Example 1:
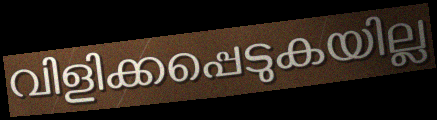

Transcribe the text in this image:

വിളിക്കപ്പെടുകയില്ല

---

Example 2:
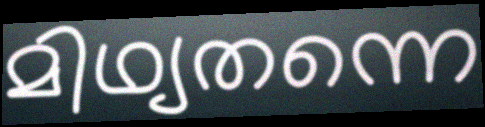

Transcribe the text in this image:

മിഥ്യതന്നെ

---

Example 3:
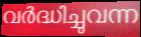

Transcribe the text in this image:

വർദ്ധിച്ചുവന്ന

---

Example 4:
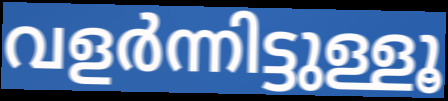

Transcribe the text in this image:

വളർന്നിട്ടുള്ളൂ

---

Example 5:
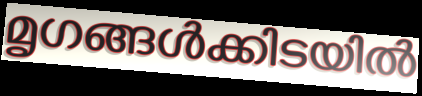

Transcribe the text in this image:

മൃഗങ്ങൾക്കിടയിൽ